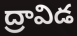
ద్రావిడ